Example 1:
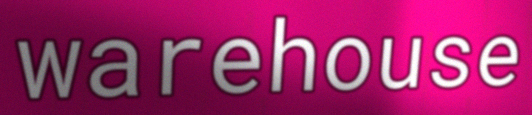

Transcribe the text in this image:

warehouse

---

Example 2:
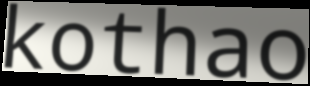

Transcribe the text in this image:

kothao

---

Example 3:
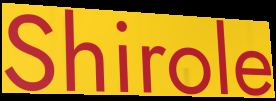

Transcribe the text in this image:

Shirole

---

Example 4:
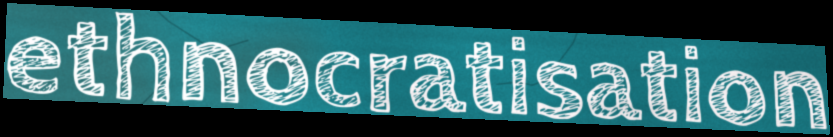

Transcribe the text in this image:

ethnocratisation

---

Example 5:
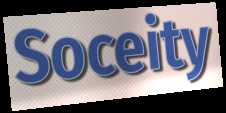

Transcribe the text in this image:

Soceity